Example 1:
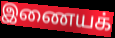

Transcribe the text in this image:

இணையக்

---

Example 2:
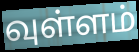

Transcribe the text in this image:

வுள்ளம்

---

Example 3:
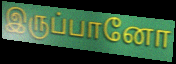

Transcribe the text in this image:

இருப்பானோ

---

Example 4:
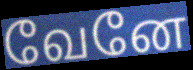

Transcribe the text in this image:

வேனே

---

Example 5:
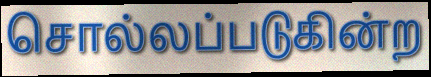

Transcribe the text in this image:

சொல்லப்படுகின்ற